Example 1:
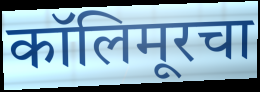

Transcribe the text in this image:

कॉलिमूरचा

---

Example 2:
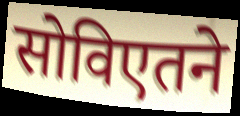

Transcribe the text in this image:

सोविएतने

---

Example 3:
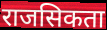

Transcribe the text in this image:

राजसिकता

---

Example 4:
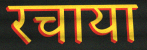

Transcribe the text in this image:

रचाया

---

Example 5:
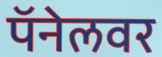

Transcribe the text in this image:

पॅनेलवर